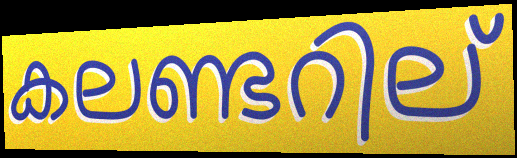
കലണ്ടറില്